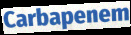
Carbapenem